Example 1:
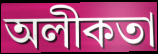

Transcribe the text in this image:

অলীকতা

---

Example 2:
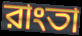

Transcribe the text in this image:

রাংতা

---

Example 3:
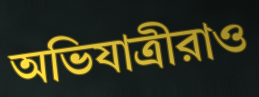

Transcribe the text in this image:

অভিযাত্রীরাও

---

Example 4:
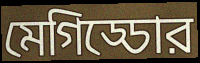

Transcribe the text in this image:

মেগিড্ডোর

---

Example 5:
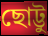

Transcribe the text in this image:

ছোট্টু